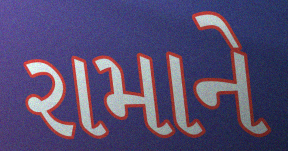
રામાને